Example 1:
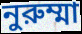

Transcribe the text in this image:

নুরুম্মা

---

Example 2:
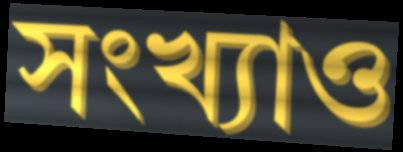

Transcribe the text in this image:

সংখ্যাও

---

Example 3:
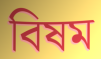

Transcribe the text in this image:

বিষম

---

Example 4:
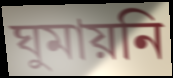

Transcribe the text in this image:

ঘুমায়নি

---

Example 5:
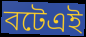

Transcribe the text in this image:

বটেএই